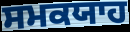
ਸਮਕਯਾਹ